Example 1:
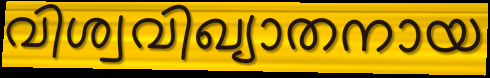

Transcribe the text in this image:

വിശ്വവിഖ്യാതനായ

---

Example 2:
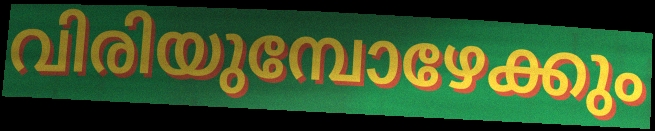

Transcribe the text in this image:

വിരിയുമ്പോഴേക്കും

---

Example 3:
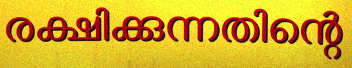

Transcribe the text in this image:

രക്ഷിക്കുന്നതിന്റെ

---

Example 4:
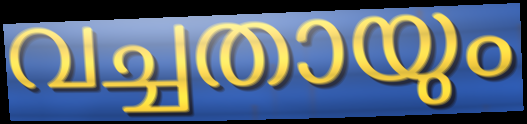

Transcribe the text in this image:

വച്ചതായും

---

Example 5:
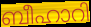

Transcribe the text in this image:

ബീഹാറി